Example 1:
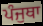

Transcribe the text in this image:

ਪੰਜੁਥਾ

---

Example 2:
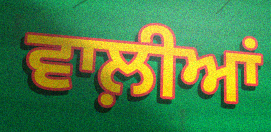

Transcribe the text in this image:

ਵਾਲ਼ੀਆਂ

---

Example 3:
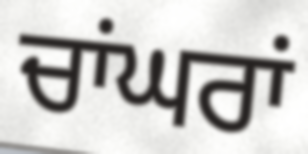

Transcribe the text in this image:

ਚਾਂਘਰਾਂ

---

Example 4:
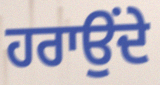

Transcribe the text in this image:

ਹਰਾਉਂਦੇ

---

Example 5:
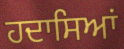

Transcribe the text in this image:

ਹਦਾਸਿਆਂ